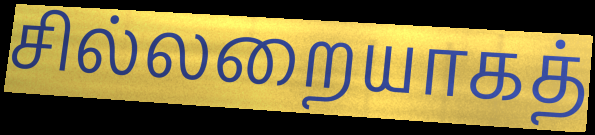
சில்லறையாகத்